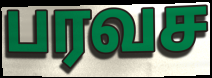
பரவச